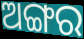
ଅଙ୍ଗର